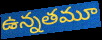
ఉన్నతమూ